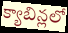
క్యాబిన్లలో